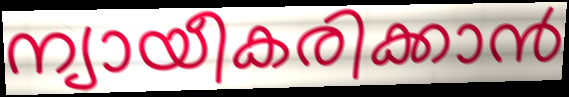
ന്യായീകരിക്കാൻ